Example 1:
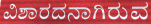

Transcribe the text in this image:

ವಿಶಾರದನಾಗಿರುವ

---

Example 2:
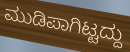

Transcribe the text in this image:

ಮುಡಿಪಾಗಿಟ್ಟದ್ದು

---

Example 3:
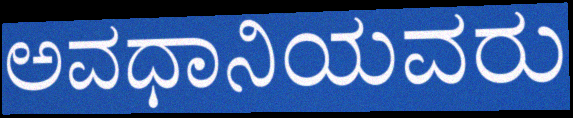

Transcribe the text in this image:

ಅವಧಾನಿಯವರು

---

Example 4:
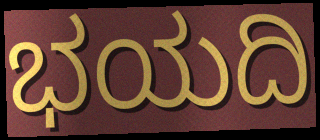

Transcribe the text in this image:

ಭಯದಿ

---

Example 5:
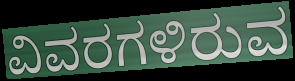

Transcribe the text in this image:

ವಿವರಗಳಿರುವ